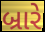
બ્રારે